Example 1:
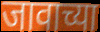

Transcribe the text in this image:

जावाच्या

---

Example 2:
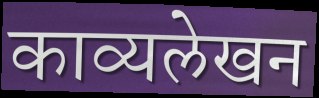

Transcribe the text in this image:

काव्यलेखन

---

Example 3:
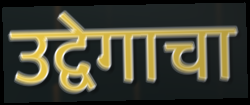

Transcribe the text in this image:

उद्वेगाचा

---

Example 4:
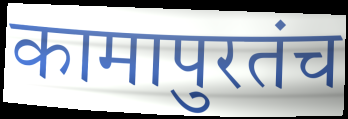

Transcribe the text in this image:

कामापुरतंच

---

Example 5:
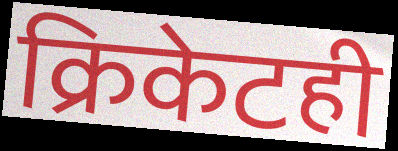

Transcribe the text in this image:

क्रिकेटही